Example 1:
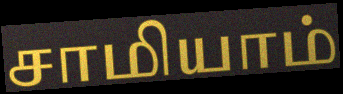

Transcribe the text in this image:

சாமியாம்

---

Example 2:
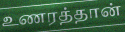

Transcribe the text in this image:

உணரத்தான்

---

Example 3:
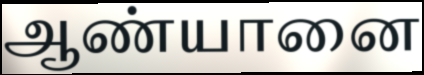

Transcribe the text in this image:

ஆண்யானை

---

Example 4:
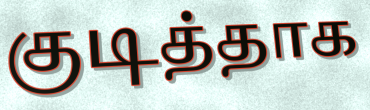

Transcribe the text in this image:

குடித்தாக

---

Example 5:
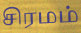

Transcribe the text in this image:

சிரமம்